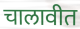
चालावीत